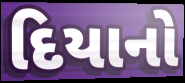
દિયાનો